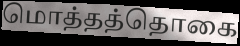
மொத்தத்தொகை